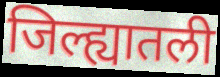
जिल्ह्यातली